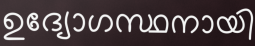
ഉദ്യോഗസ്ഥനായി